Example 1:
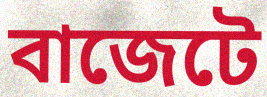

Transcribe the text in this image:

বাজেটে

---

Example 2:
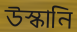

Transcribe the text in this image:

উস্কানি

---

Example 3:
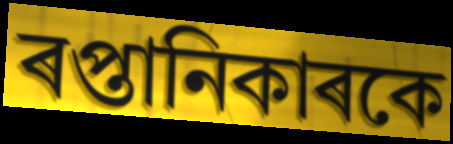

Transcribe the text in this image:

ৰপ্তানিকাৰকে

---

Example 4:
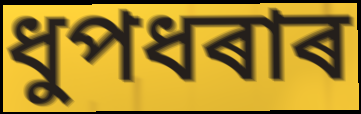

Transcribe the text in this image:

ধুপধৰাৰ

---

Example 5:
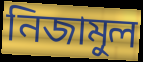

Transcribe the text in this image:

নিজামুল